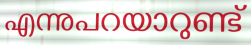
എന്നുപറയാറുണ്ട്